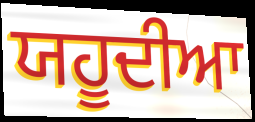
ਯਹੂਦੀਆ